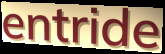
entride